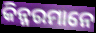
କିନ୍ନରମାନେ